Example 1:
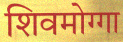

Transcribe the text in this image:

शिवमोग्गा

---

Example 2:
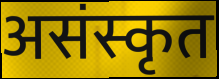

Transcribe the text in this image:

असंस्कृत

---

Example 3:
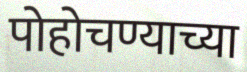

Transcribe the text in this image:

पोहोचण्याच्या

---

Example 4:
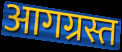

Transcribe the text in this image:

आगग्रस्त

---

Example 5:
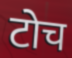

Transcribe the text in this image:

टोच